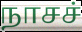
நாசச்